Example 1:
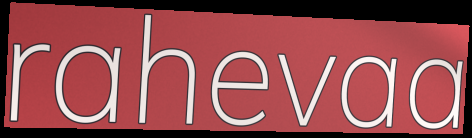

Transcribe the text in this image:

rahevaa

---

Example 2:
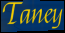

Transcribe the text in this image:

Taney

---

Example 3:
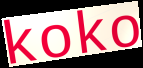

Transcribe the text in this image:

koko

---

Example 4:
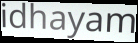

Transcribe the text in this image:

idhayam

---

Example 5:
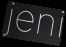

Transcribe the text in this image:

jeni